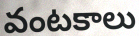
వంటకాలు